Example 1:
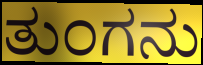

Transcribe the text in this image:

ತುಂಗನು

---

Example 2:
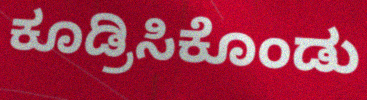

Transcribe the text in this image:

ಕೂಡ್ರಿಸಿಕೊಂಡು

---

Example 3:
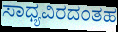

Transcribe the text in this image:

ಸಾಧ್ಯವಿರದಂತಹ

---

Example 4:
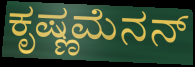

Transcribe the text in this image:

ಕೃಷ್ಣಮೆನನ್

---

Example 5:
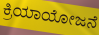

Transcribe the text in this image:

ಕ್ರಿಯಾಯೋಜನೆ